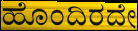
ಹೊಂದಿರದೇ